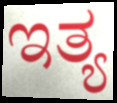
ಇತ್ಯ